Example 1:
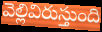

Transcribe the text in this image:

వెల్లివిరుస్తుంది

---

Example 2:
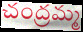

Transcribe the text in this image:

చంద్రమ్మ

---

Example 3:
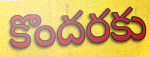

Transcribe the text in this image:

కొందరకు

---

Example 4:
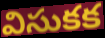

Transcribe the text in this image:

విసుకక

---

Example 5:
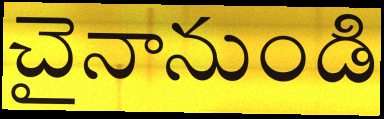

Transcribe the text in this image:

చైనానుండి